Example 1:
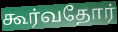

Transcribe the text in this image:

கூர்வதோர்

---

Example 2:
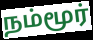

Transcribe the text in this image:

நம்மூர்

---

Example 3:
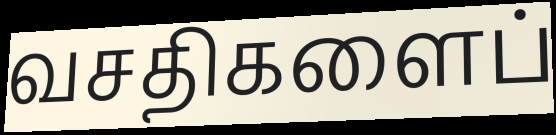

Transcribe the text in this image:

வசதிகளைப்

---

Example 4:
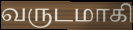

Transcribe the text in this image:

வருடமாகி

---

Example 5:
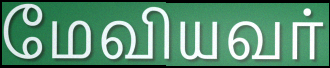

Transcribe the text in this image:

மேவியவர்